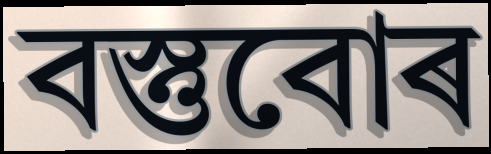
বস্তুবোৰ